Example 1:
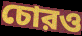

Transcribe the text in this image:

চোরও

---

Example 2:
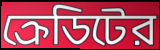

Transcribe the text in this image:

ক্রেডিটের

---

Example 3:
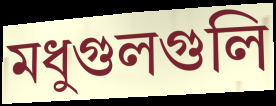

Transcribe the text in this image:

মধুগুলগুলি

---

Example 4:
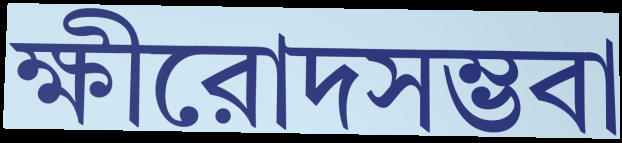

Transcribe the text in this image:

ক্ষীরোদসম্ভবা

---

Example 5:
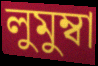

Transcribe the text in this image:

লুমুম্বা